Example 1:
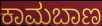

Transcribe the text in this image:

ಕಾಮಬಾಣ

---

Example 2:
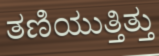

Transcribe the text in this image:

ತಣಿಯುತ್ತಿತ್ತು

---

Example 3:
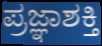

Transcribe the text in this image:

ಪ್ರಜ್ಞಾಶಕ್ತಿ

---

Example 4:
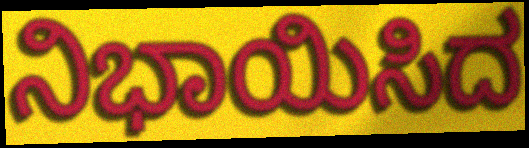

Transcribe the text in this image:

ನಿಭಾಯಿಸಿದ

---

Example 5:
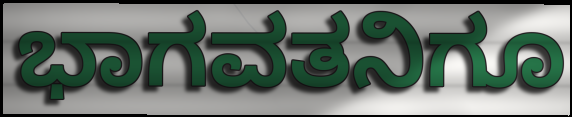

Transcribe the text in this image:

ಭಾಗವತನಿಗೂ